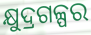
କ୍ଷୁଦ୍ରଗଳ୍ପର